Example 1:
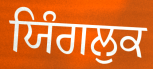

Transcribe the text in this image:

ਯਿੰਗਲੁਕ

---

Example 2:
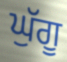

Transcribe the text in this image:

ਘੁੱਗੂ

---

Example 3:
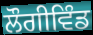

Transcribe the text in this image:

ਲੌਗੀਵਿੰਡ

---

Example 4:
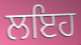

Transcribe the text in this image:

ਲਇਹ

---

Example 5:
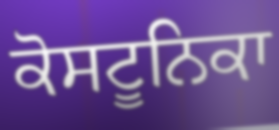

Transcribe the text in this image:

ਕੋਸਟੂਨਿਕਾ